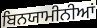
ਬਿਨਯਾਮੀਨੀਆਂ